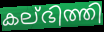
കല്ഭിത്തി